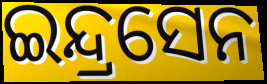
ଇନ୍ଦ୍ରସେନ